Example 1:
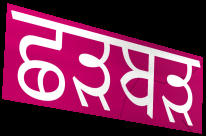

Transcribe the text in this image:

ਛੜਬੜ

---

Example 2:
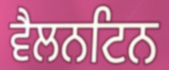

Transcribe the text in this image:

ਵੈਲਨਟਿਨ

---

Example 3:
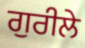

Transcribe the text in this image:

ਗੁਰੀਲੇ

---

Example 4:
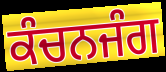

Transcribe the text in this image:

ਕੰਚਨਜੰਗ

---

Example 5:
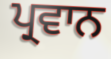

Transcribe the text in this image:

ਪ੍ਰਵਾਨ